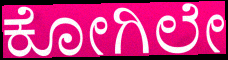
ಕೋಗಿಲೇ